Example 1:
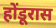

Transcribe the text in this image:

होंडूरास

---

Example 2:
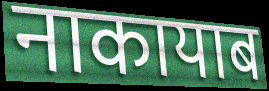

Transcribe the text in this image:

नाकायाब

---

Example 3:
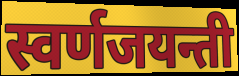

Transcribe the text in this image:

स्वर्णजयन्ती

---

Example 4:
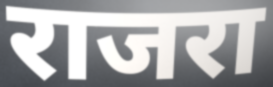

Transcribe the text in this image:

राजरा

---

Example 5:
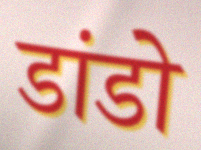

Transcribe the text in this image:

डांडो